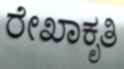
ರೇಖಾಕೃತಿ